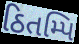
ઠિતમ્પિ